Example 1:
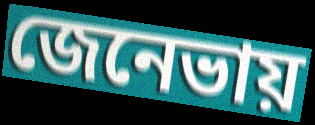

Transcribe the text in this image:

জেনেভায়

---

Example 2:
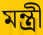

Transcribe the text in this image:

মন্ত্রী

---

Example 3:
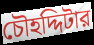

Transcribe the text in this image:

চৌহদ্দিটার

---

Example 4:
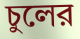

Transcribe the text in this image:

চুলের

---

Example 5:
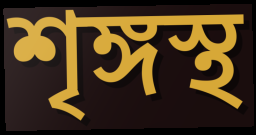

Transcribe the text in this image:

শৃঙ্গস্থ